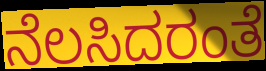
ನೆಲಸಿದರಂತೆ